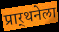
प्रार्थनेला